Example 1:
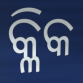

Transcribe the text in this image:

କ୍ଳିକ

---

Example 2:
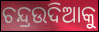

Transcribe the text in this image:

ଚନ୍ଦ୍ରଉଦିଆକୁ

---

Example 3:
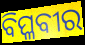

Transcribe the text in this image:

ବିପ୍ଳବୀର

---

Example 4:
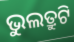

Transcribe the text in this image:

ଭୁଲତ୍ରୁଟି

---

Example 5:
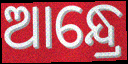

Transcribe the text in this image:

ଆନ୍ଧ୍ରେ